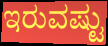
ಇರುವಷ್ಟು